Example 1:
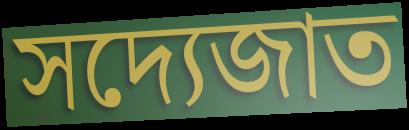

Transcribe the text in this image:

সদ্যেজাত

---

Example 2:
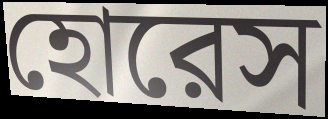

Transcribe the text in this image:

হোরেস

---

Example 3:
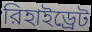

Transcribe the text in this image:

রিহাইড্রেট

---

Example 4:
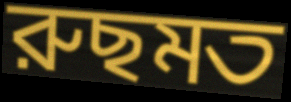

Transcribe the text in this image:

রুছমত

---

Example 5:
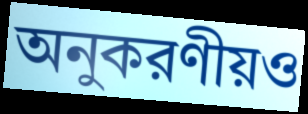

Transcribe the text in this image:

অনুকরণীয়ও